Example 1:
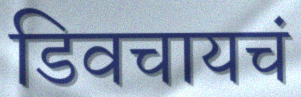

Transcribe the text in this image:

डिवचायचं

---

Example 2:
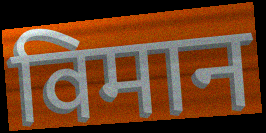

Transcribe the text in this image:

विमान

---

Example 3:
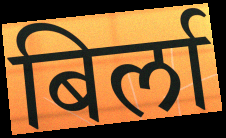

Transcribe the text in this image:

बिर्ला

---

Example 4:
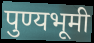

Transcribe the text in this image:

पुण्यभूमी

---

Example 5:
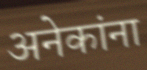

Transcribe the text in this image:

अनेकांना